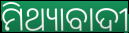
ମିଥ୍ୟାବାଦୀ